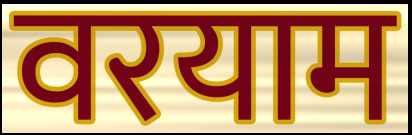
वरयाम